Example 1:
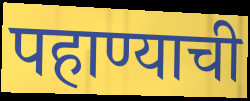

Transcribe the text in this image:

पहाण्याची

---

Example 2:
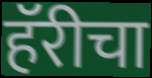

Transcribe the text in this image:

हॅरीचा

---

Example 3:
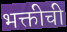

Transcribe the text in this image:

भक्तीची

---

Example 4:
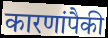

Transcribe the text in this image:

कारणांपैकी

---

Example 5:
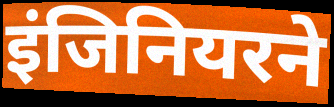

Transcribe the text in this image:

इंजिनियरने